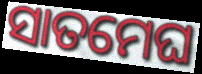
ସାତମେଘ